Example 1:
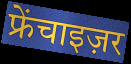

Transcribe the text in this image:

फ्रेंचाइज़र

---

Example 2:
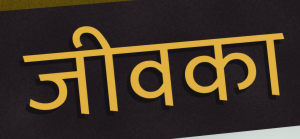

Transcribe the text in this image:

जीवका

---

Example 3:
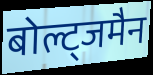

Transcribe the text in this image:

बोल्ट्जमैन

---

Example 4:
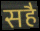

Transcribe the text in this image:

सहै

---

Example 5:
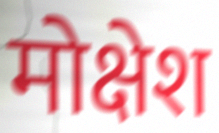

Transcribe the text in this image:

मोक्षेश